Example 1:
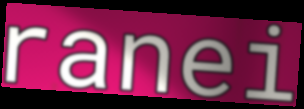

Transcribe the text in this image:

ranei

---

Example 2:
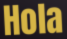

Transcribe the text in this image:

Hola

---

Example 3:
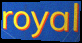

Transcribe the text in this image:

royal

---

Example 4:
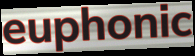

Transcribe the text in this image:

euphonic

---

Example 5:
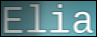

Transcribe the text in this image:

Elia